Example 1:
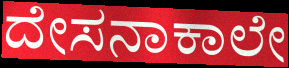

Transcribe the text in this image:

ದೇಸನಾಕಾಲೇ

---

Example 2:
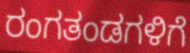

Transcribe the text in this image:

ರಂಗತಂಡಗಳಿಗೆ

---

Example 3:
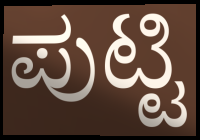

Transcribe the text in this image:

ಪುಟ್ಟಿ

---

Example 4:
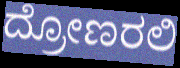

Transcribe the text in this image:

ದ್ರೋಣರಲಿ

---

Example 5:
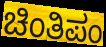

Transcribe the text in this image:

ಚಿಂತಿಪಂ